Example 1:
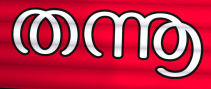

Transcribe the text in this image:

തന്നൂ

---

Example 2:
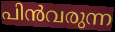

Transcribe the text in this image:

പിൻവരുന്ന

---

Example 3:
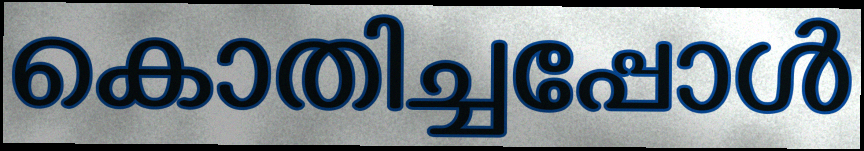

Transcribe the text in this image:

കൊതിച്ചപ്പോൾ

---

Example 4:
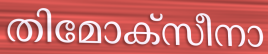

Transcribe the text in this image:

തിമോക്സീനാ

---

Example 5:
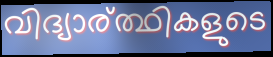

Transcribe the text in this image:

വിദ്യാര്ത്ഥികളുടെ